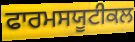
ਫਾਰਮਸਯੂਟੀਕਲ